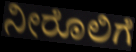
ನೀರೊಲಿಗೆ